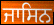
ਜਾਸਿਨ